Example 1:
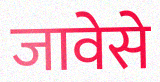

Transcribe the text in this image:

जावेसे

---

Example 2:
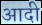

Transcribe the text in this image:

आदी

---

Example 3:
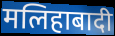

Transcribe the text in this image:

मलिहाबादी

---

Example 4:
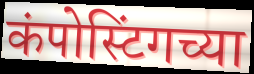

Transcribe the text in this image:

कंपोस्टिंगच्या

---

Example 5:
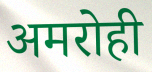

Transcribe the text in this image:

अमरोही